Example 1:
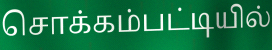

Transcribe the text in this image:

சொக்கம்பட்டியில்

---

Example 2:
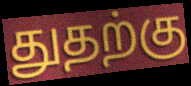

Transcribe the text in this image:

துதற்கு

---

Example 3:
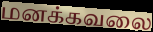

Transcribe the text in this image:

மனக்கவலை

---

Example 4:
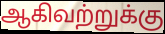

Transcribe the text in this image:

ஆகிவற்றுக்கு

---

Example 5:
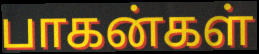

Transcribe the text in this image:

பாகன்கள்